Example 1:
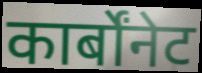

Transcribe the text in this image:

कार्बोंनेट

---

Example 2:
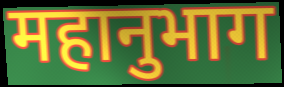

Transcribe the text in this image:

महानुभाग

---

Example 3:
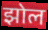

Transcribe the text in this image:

झोल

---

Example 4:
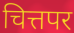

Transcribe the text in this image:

चित्तपर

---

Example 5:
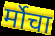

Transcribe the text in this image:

र्मोचा